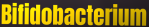
Bifidobacterium